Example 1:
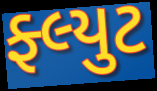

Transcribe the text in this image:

ફ્લ્યુટ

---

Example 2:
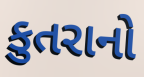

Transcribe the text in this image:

કુતરાનો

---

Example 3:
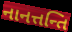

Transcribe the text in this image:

નાનત્તન્તિ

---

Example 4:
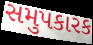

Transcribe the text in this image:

સમુપકારક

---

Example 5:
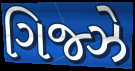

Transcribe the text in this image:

ગિજ્ઝે